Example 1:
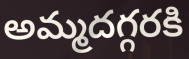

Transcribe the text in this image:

అమ్మదగ్గరకి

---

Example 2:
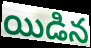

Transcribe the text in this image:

యిడిన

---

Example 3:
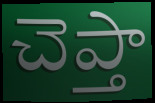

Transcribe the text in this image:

చెప్తా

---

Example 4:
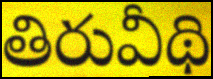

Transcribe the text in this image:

తిరువీథి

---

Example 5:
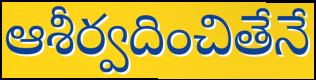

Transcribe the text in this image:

ఆశీర్వదించితేనే